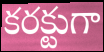
కరక్టుగా